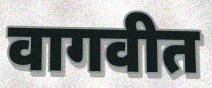
वागवीत